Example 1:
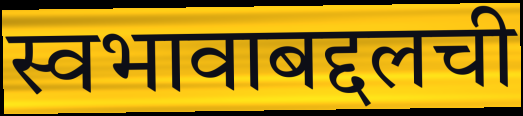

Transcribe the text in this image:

स्वभावाबद्दलची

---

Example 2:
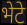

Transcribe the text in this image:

भेटे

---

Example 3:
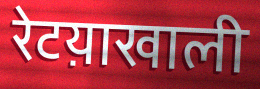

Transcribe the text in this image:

रेटय़ाखाली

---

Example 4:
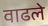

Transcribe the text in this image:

वाढले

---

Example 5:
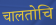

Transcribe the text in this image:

चालतोचि